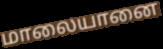
மாலையானை